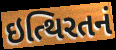
ઇત્થિરતનં